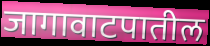
जागावाटपातील